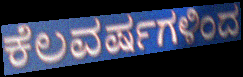
ಕೆಲವರ್ಷಗಳಿಂದ